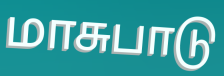
மாசுபாடு